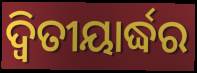
ଦ୍ୱିତୀୟାର୍ଦ୍ଧର